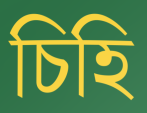
চিহি